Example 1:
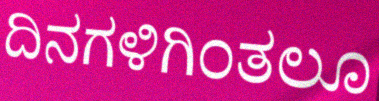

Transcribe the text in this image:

ದಿನಗಳಿಗಿಂತಲೂ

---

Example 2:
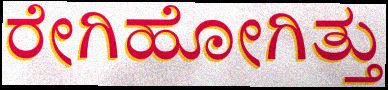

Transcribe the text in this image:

ರೇಗಿಹೋಗಿತ್ತು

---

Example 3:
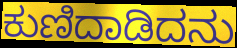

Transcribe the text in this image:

ಕುಣಿದಾಡಿದನು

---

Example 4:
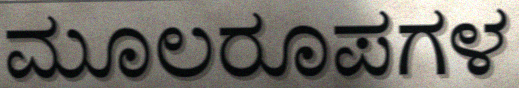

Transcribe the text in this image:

ಮೂಲರೂಪಗಳ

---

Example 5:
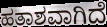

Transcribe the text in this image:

ಹತಾಶವಾಗಿದೆ